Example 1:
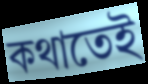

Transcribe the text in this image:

কথাতেই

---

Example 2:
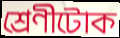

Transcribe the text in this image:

শ্ৰেণীটোক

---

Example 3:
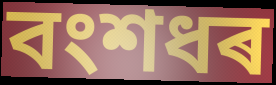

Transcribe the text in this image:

বংশধৰ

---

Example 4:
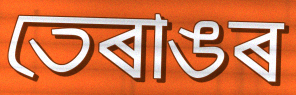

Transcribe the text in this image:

তেৰাঙৰ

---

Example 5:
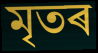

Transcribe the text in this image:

মৃতৰ